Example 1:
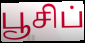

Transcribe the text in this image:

பூசிப்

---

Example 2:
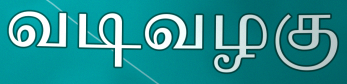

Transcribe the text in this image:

வடிவழகு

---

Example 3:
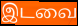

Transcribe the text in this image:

இடவை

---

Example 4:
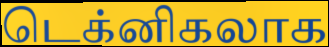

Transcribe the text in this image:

டெக்னிகலாக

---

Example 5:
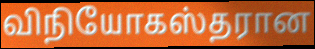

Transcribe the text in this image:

விநியோகஸ்தரான